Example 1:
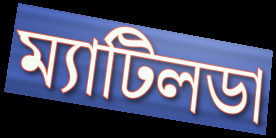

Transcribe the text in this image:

ম্যাটিলডা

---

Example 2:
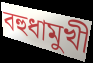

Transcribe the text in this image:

বহুধামুখী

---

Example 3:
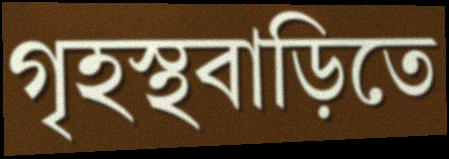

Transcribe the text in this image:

গৃহস্থবাড়িতে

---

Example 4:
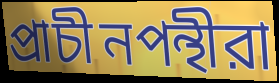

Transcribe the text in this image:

প্রাচীনপন্থীরা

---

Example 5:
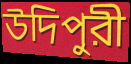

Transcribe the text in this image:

উদিপুরী